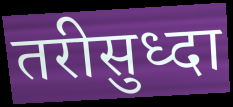
तरीसुध्दा